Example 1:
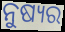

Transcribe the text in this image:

ନୁଷ୍ୟର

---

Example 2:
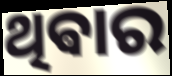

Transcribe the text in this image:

ଥିଵାର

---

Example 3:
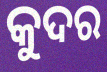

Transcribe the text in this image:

କୁଦର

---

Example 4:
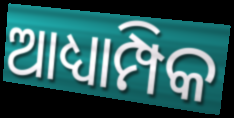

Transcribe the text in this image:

ଆଧ୍ୟାମ୍ପିକ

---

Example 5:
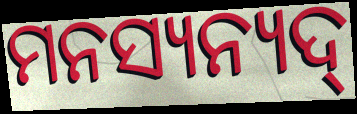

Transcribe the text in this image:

ମନସ୍ୟନ୍ୟଦ୍